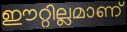
ഈറ്റില്ലമാണ്